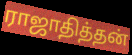
ராஜாதித்தன்